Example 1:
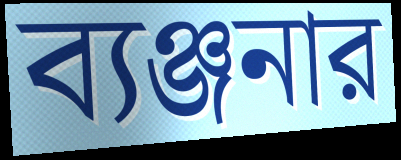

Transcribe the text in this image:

ব্যঞ্জনার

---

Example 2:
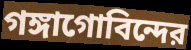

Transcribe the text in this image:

গঙ্গাগোবিন্দের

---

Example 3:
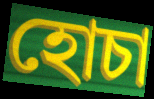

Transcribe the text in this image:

হোচা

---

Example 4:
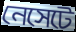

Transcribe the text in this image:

নেসেটে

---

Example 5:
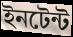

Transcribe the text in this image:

ইনটেন্ট